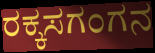
ರಕ್ಕಸಗಂಗನ